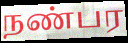
நண்பர